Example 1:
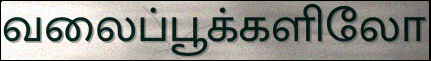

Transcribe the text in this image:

வலைப்பூக்களிலோ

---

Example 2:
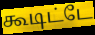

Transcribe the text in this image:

கூடிட்டே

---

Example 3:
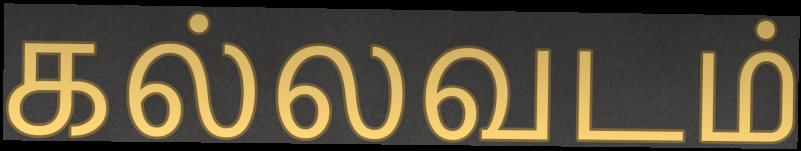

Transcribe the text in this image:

கல்லவடம்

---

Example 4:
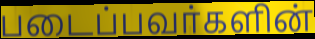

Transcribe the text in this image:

படைப்பவர்களின்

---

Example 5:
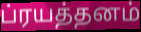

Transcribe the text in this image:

ப்ரயத்தனம்